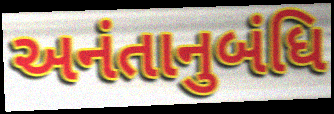
અનંતાનુબંધિ